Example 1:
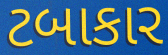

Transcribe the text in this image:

ટબાકાર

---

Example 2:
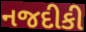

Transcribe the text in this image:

નજદીકી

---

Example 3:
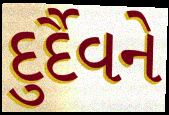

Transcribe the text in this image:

દુર્દૈવને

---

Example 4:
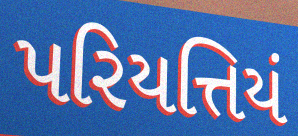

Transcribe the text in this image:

પરિયત્તિયં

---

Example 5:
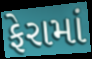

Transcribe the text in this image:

ફેરામાં